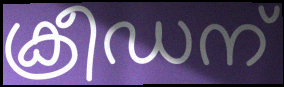
ക്രീഡന്